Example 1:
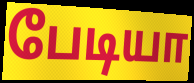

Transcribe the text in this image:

பேடியா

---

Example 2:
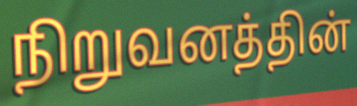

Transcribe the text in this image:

நிறுவனத்தின்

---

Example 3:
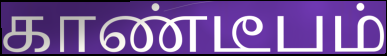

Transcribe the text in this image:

காண்டீபம்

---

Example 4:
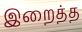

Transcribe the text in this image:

இறைத்த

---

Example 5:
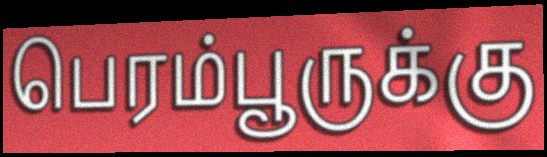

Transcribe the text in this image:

பெரம்பூருக்கு